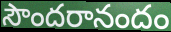
సౌందరానందం